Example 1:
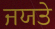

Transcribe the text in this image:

ਜਯਤੇ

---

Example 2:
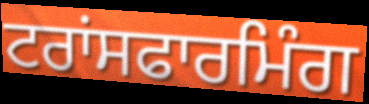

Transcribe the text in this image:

ਟਰਾਂਸਫਾਰਮਿੰਗ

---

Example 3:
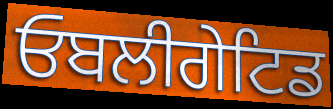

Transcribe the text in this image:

ਓਬਲੀਗੇਟਿਡ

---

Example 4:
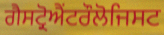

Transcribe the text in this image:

ਗੈਸਟ੍ਰੋਐਂਟਰੌਲੋਜਿਸਟ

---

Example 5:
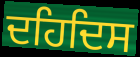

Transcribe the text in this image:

ਦਹਿਦਿਸ